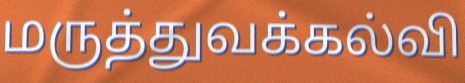
மருத்துவக்கல்வி